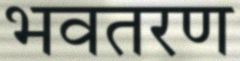
भवतरण